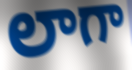
లాగా